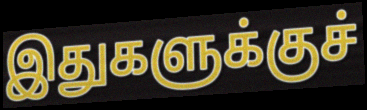
இதுகளுக்குச்